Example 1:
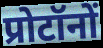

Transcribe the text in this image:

प्रोटॉनों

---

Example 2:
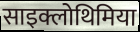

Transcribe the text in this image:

साइक्लोथिमिया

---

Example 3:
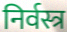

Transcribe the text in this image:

निर्वस्त्र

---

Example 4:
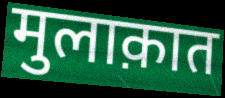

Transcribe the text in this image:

मुलाक़ात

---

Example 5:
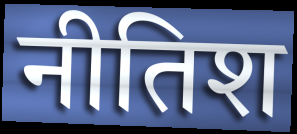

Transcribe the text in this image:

नीतिश